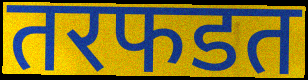
तरफडत